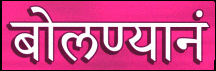
बोलण्यानं